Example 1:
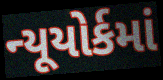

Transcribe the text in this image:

ન્યૂયોર્કમાં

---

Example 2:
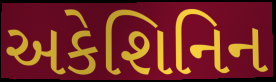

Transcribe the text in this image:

અકેશિનિન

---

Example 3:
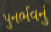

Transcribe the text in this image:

પુનર્ભવનું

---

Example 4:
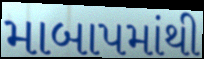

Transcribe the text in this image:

માબાપમાંથી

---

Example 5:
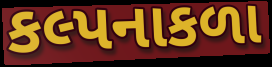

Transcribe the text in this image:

કલ્પનાકળા